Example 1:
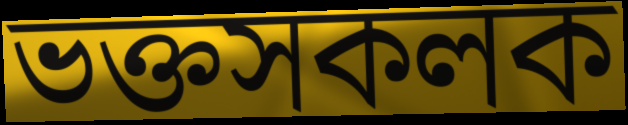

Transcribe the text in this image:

ভক্তসকলক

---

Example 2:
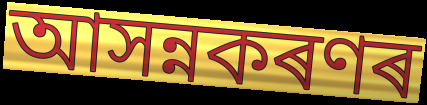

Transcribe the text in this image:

আসন্নকৰণৰ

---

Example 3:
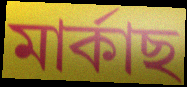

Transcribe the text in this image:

মাৰ্কাছ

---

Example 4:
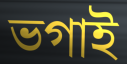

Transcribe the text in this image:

ভগাই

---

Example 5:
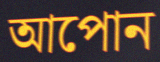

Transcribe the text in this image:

আপোন